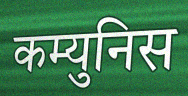
कम्युनिस